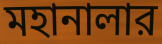
মহানালার